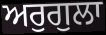
ਅਰੁਗੁਲਾ